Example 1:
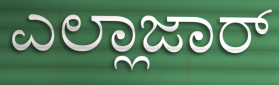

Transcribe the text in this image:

ಎಲ್ಲಾಜಾರ್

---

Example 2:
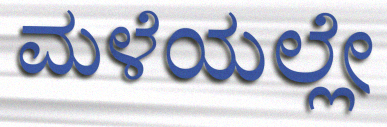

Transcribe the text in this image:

ಮಳೆಯಲ್ಲೇ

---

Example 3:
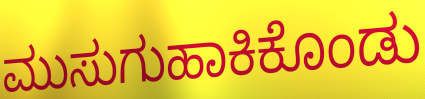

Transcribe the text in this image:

ಮುಸುಗುಹಾಕಿಕೊಂಡು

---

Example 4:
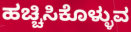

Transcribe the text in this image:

ಹಚ್ಚಿಸಿಕೊಳ್ಳುವ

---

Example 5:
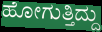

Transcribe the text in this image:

ಹೋಗುತ್ತಿದ್ದು